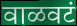
वाळवटं